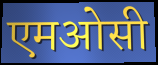
एमओसी